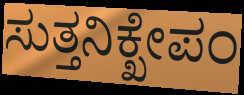
ಸುತ್ತನಿಕ್ಖೇಪಂ